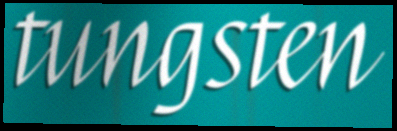
tungsten